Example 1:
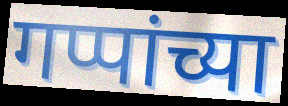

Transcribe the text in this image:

गप्पांच्या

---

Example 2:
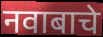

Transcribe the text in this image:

नवाबाचे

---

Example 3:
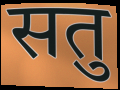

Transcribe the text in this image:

सतु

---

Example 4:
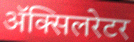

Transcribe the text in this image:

ॲक्सिलरेटर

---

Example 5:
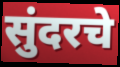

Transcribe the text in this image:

सुंदरचे